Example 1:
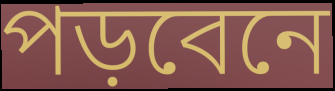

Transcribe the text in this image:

পড়বেনে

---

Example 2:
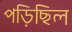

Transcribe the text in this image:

পড়িছিল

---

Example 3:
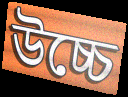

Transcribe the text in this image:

উচ্চে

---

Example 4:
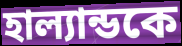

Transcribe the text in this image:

হাল্যান্ডকে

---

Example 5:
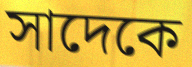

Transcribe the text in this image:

সাদেকে